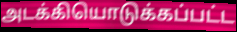
அடக்கியொடுக்கப்பட்ட